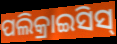
ପଲିକ୍ରାଇସିସ୍